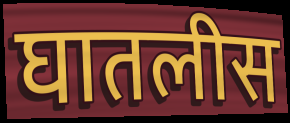
घातलीस